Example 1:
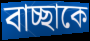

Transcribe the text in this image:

বাচ্ছাকে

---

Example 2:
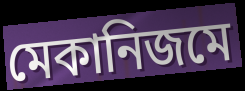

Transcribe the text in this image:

মেকানিজমে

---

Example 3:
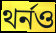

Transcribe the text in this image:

থর্নও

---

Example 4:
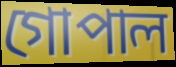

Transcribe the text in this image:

গোপাল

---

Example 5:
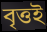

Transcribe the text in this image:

বৃত্তই